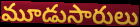
మూడుసారులు